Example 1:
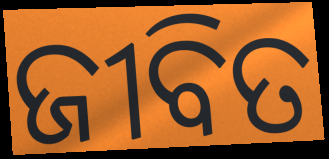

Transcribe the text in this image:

ଜୀବିତ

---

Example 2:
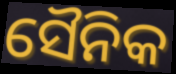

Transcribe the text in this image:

ସୈନିକ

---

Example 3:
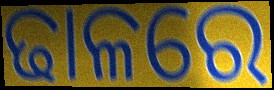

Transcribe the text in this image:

ଢାଳରେ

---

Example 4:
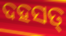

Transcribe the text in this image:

ଦହସତ୍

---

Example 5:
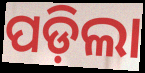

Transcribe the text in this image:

ପଡ଼ିଲା